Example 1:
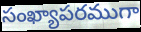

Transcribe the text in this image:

సంఖ్యాపరముగా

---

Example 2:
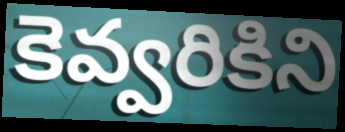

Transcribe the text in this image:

కెవ్వరికిని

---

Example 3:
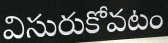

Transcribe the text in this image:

విసురుకోవటం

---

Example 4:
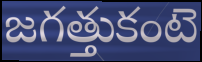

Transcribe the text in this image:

జగత్తుకంటె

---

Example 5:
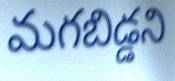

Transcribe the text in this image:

మగబిడ్డని